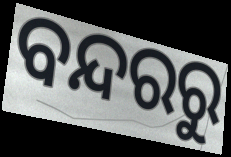
ବନ୍ଦରରୁ